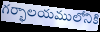
గర్భాలయములోనికి